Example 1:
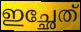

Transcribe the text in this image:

ഇച്ഛേത്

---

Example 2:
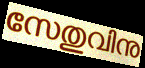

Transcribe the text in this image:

സേതുവിനു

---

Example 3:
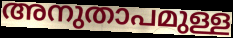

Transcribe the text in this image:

അനുതാപമുള്ള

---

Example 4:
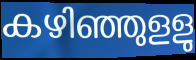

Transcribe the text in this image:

കഴിഞ്ഞുളളു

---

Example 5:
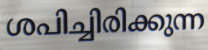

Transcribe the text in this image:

ശപിച്ചിരിക്കുന്ന